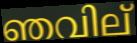
ഞവില്